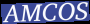
AMCOS